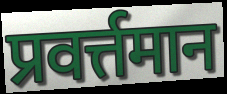
प्रवर्त्तमान